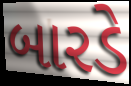
બારડે